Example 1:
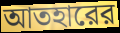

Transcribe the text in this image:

আতহারের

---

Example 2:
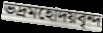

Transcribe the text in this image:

ভদ্রমহোদয়বৃন্দ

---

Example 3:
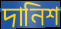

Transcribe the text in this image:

দানিশ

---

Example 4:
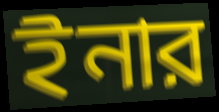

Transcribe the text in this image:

ইনার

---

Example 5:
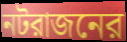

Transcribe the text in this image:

নটরাজনের